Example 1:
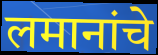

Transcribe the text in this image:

लमानांचे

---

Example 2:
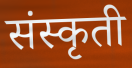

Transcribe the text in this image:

संस्कृती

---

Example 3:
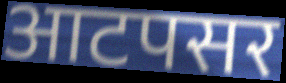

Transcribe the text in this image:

आटपसर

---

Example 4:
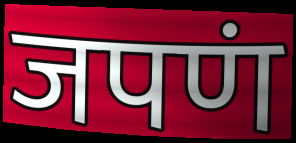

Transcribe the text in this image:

जपणं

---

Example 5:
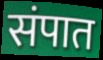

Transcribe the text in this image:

संपात